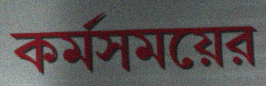
কর্মসময়ের